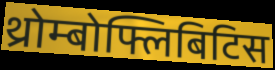
थ्रोम्बोफ्लिबिटिस